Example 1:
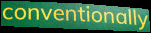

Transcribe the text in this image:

conventionally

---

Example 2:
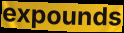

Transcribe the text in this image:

expounds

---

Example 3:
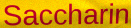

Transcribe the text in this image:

Saccharin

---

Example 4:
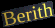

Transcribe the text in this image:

Berith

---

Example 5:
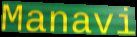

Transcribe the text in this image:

Manavi